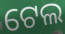
ଟେଲ